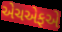
એચએફએ